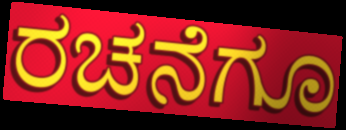
ರಚನೆಗೂ